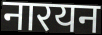
नारयन